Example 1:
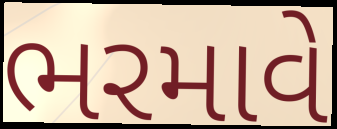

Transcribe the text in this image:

ભરમાવે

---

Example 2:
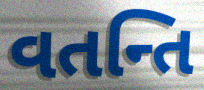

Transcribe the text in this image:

વતન્તિ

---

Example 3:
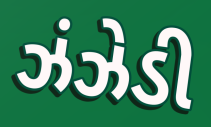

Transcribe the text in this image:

ઝંઝેડી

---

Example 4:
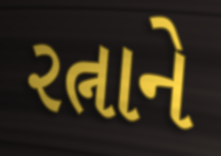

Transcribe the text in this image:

રત્નાને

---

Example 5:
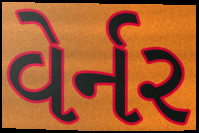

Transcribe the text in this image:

વેર્નર